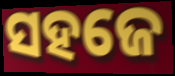
ସହଜେ